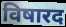
विषारद